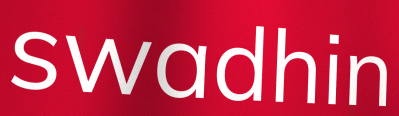
swadhin